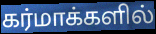
கர்மாக்களில்